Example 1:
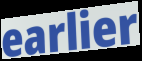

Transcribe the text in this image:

earlier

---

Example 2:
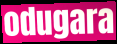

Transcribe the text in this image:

odugara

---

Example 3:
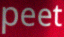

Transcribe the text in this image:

peet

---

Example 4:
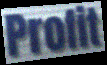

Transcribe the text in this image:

Profit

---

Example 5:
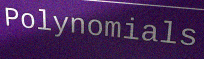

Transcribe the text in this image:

Polynomials